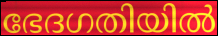
ഭേദഗതിയിൽ